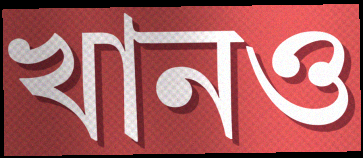
খানও